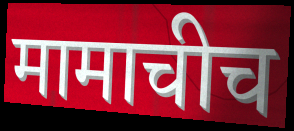
मामाचीच